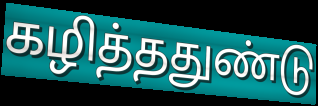
கழித்ததுண்டு